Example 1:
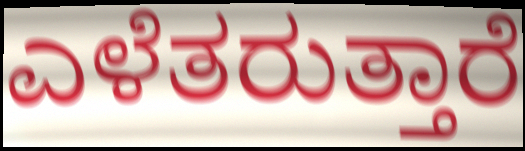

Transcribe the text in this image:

ಎಳೆತರುತ್ತಾರೆ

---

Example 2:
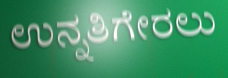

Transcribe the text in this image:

ಉನ್ನತಿಗೇರಲು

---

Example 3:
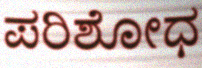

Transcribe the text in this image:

ಪರಿಶೋಧ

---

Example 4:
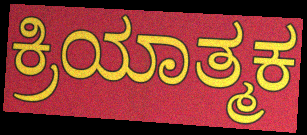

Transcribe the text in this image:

ಕ್ರಿಯಾತ್ಮಕ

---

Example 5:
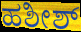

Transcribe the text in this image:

ಹಶೀಶ್